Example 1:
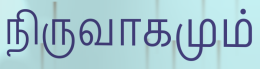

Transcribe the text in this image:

நிருவாகமும்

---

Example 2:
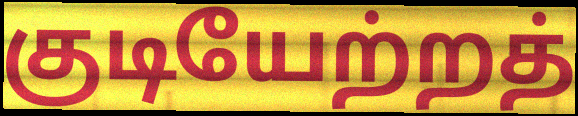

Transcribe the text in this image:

குடியேற்றத்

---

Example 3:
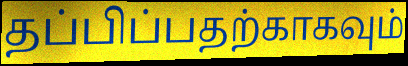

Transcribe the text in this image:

தப்பிப்பதற்காகவும்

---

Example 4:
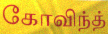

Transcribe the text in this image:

கோவிந்த்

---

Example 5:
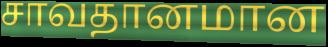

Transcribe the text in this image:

சாவதானமான